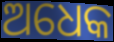
ଅଧେକ